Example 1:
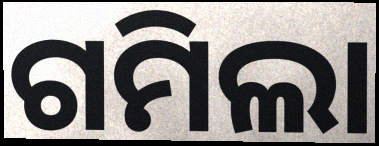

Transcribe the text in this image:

ଗମିଲା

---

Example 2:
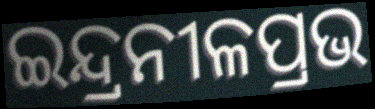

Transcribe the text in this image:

ଇନ୍ଦ୍ରନୀଳପ୍ରଭ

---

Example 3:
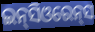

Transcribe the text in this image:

ଇନ୍‌ସିଓରେନ୍‌ସ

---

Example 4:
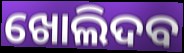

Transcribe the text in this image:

ଖୋଲିଦବ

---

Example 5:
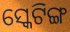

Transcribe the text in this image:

ସ୍କେଟିଙ୍ଗ